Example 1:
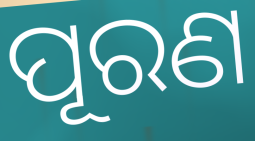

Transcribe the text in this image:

ପୂରଣ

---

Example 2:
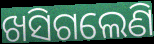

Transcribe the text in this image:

ଖସିଗଲେଣି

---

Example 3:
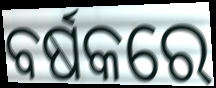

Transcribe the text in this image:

ବର୍ଷକରେ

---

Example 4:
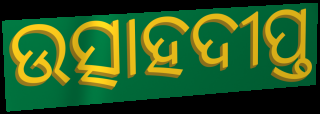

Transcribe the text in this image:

ଉତ୍ସାହଦୀପ୍ତ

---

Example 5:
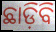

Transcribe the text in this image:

ଛାଡ଼ିବି